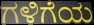
ಗಳಿಗೆಯ